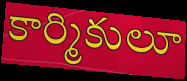
కార్మికులూ